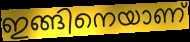
ഇങ്ങിനെയാണ്